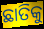
ଛାତିକୁ